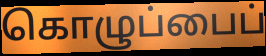
கொழுப்பைப்